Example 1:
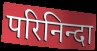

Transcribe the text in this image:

परिनिन्दा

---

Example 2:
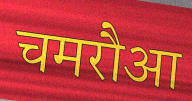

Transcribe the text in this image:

चमरौआ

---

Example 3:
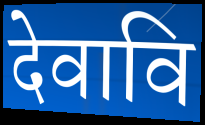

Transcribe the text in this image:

देवावि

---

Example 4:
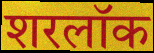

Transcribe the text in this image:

शरलॉक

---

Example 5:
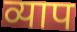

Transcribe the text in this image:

व्याप